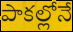
పాకల్లోనే